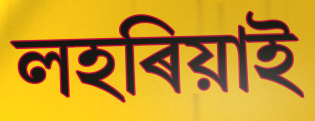
লহৰিয়াই